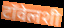
टॉवेलशी